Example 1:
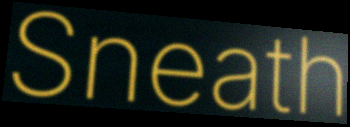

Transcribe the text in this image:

Sneath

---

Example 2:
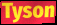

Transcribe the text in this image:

Tyson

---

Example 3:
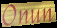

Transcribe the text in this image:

Onun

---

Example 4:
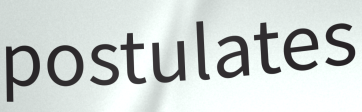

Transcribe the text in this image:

postulates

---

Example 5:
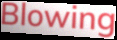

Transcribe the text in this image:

Blowing